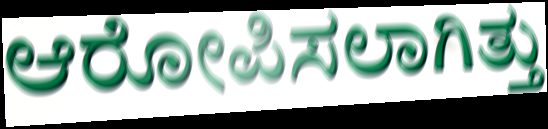
ಆರೋಪಿಸಲಾಗಿತ್ತು